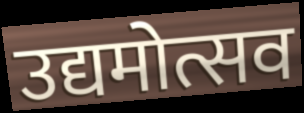
उद्यमोत्सव